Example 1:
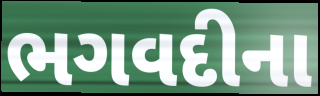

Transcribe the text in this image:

ભગવદીના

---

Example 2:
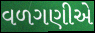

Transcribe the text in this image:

વળગણીએ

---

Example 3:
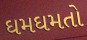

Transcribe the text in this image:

ઘમઘમતો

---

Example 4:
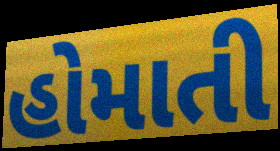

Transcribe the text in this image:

હોમાતી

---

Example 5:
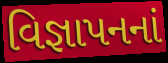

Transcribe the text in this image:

વિજ્ઞાપનનાં